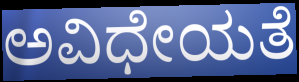
ಅವಿಧೇಯತೆ